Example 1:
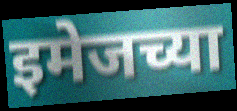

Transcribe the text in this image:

इमेजच्या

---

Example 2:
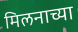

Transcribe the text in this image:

मिलनाच्या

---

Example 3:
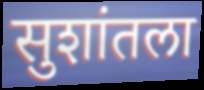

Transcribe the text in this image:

सुशांतला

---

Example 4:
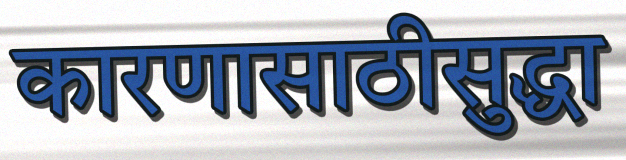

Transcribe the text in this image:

कारणासाठीसुद्धा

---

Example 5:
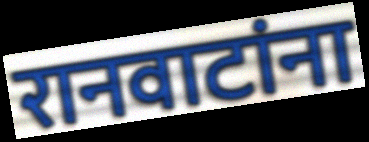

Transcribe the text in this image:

रानवाटांना